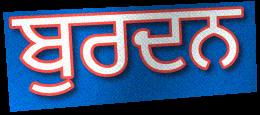
ਬੁਰਦਨ